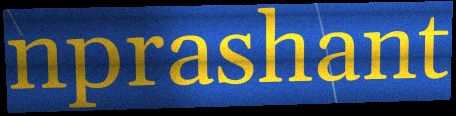
nprashant